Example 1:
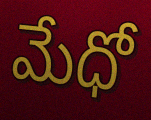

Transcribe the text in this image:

మేధో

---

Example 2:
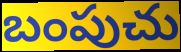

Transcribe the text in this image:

బంపుచు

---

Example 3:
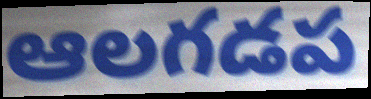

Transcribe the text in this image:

ఆలగడప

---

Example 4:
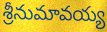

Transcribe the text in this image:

శ్రీనుమావయ్య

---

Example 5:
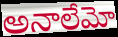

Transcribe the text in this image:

అనాలేమో